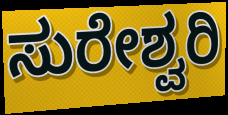
ಸುರೇಶ್ವರಿ